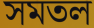
সমতল